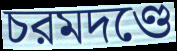
চরমদণ্ডে